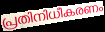
പ്രതിനിധീകരണം